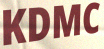
KDMC